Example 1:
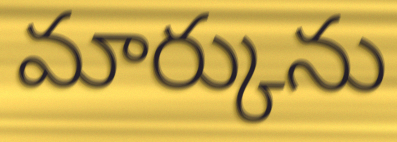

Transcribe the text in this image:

మార్కును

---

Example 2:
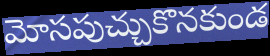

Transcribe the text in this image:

మోసపుచ్చుకొనకుండ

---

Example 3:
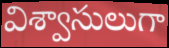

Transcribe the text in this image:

విశ్వాసులుగా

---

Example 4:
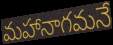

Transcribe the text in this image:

మహానాగమనే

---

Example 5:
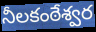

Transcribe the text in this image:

నీలకంఠేశ్వర